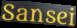
Sansei